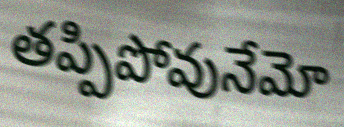
తప్పిపోవునేమో